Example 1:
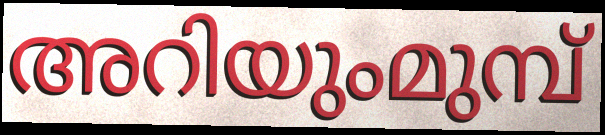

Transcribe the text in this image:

അറിയുംമുമ്പ്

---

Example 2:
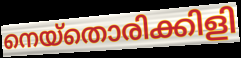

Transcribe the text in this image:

നെയ്തൊരിക്കിളി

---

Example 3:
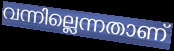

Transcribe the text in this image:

വന്നില്ലെന്നതാണ്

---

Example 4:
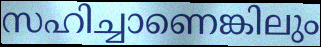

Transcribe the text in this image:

സഹിച്ചാണെങ്കിലും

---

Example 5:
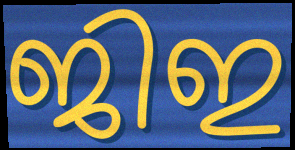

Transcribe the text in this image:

ജിഇ